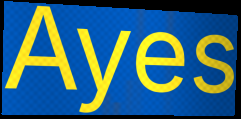
Ayes